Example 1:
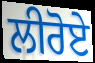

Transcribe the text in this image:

ਲੀਰੋਏ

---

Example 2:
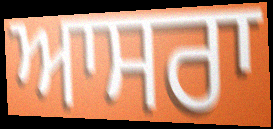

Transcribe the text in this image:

ਆਸਰਾ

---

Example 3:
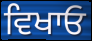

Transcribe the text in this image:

ਵਿਖਾਓ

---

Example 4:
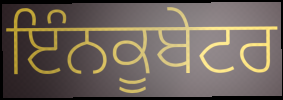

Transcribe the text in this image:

ਇੰਨਕੂਬੇਟਰ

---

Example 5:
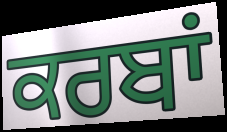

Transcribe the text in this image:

ਕਰਬਾਂ